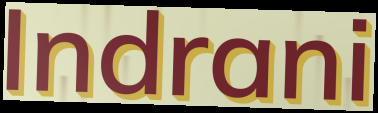
Indrani